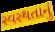
સ્વસ્થતાનું